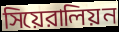
সিয়েরালিয়ন